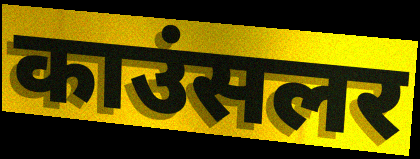
काउंसलर